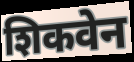
शिकवेन